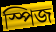
স্পিজ